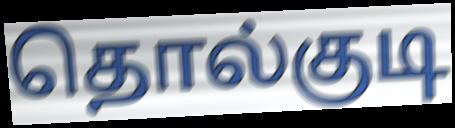
தொல்குடி